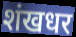
शंखधर